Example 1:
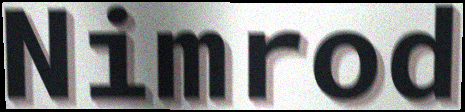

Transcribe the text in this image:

Nimrod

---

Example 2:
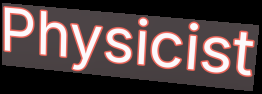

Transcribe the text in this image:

Physicist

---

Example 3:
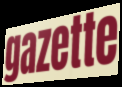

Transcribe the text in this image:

gazette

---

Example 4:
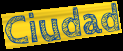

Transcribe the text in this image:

Ciudad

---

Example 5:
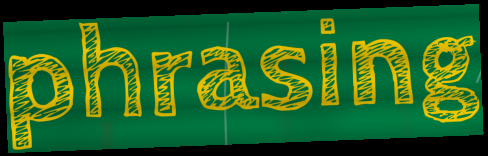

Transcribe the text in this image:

phrasing